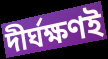
দীর্ঘক্ষণই